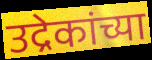
उद्रेकांच्या